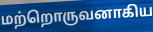
மற்றொருவனாகிய